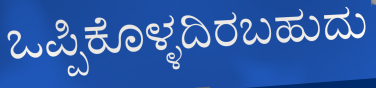
ಒಪ್ಪಿಕೊಳ್ಳದಿರಬಹುದು